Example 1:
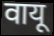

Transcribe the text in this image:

वायू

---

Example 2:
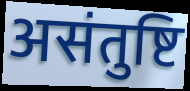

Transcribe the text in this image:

असंतुष्टि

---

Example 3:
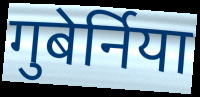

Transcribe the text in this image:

गुबेर्निया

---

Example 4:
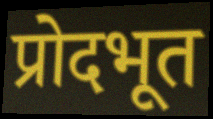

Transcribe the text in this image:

प्रोदभूत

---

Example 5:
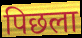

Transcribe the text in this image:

पिछला